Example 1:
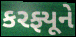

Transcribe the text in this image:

કરફ્યૂને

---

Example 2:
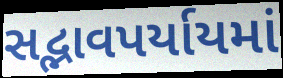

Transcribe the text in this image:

સદ્ભાવપર્યાયમાં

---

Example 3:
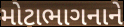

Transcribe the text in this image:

મોટાભાગનાને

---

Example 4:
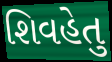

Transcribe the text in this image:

શિવહેતુ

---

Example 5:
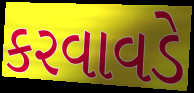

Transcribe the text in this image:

કરવાવડે